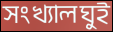
সংখ্যালঘুই